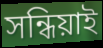
সন্ধিয়াই